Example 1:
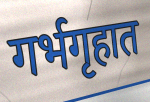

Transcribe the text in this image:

गर्भगृहात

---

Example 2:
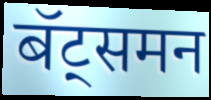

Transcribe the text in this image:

बॅट्समन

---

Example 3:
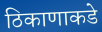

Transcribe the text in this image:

ठिकाणाकडे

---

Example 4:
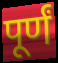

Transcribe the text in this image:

पूर्णं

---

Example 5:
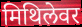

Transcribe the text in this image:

मिथिलेवर